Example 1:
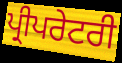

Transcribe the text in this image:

ਪ੍ਰੀਪਰੇਟਰੀ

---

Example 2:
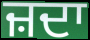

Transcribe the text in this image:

ਜ਼ਦਾ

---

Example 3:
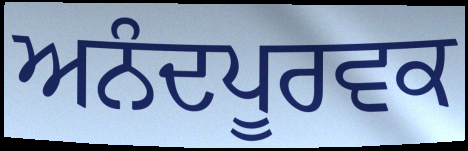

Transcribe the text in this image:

ਅਨੰਦਪੂਰਵਕ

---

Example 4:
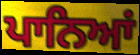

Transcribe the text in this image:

ਪਾਨਿਆਂ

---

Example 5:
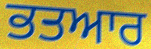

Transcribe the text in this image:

ਭਤਆਰ